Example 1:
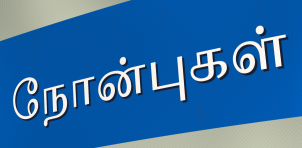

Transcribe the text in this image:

நோன்புகள்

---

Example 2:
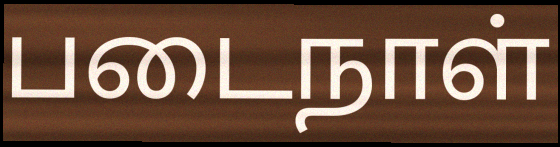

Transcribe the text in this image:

படைநாள்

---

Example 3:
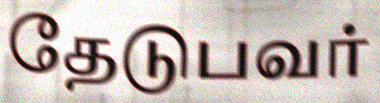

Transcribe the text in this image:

தேடுபவர்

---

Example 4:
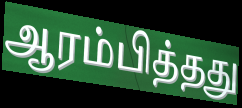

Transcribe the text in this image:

ஆரம்பித்தது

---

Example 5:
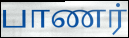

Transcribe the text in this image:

பாணர்